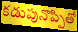
కడుపునొప్పితో